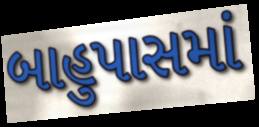
બાહુપાસમાં